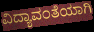
ವಿದ್ಯಾವಂತೆಯಾಗಿ